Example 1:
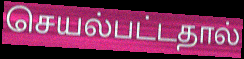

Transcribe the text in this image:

செயல்பட்டதால்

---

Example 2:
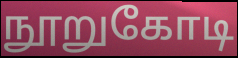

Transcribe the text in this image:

நூறுகோடி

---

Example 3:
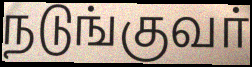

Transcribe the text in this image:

நடுங்குவர்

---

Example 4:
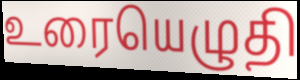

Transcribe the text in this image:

உரையெழுதி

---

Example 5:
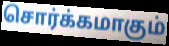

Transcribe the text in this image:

சொர்க்கமாகும்